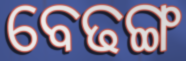
ବେଢଙ୍ଗ